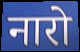
नारो